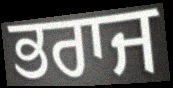
ਭਰਾਜ